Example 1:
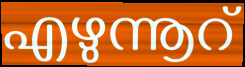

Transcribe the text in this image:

എഴുന്നൂറ്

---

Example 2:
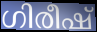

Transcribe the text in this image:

ഗിരീഷ്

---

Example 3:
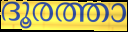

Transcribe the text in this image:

ദൂരത്താ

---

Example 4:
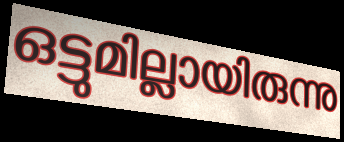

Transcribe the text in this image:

ഒട്ടുമില്ലായിരുന്നു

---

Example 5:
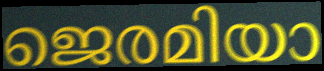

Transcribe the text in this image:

ജെരമിയാ